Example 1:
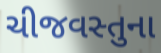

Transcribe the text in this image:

ચીજવસ્તુના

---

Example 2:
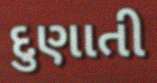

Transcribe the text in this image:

દુણાતી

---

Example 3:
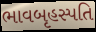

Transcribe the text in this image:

ભાવબૃહસ્પતિ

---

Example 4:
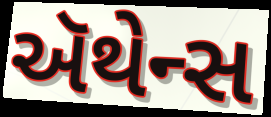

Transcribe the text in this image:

ઍથેન્સ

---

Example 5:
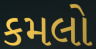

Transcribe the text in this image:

કમલો